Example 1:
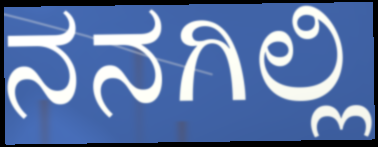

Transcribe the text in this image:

ನನಗಿಲ್ಲಿ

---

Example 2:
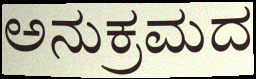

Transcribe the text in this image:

ಅನುಕ್ರಮದ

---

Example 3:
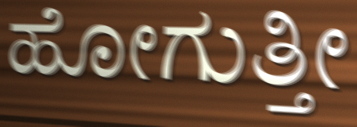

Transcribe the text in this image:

ಹೋಗುತ್ತೀ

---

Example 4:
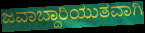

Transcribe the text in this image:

ಜವಾಬ್ದಾರಿಯುತವಾಗಿ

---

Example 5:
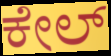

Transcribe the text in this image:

ಕೇಲ್